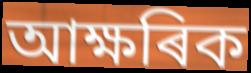
আক্ষৰিক